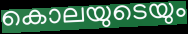
കൊലയുടെയും